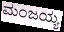
ಮಂಜಯ್ಯ